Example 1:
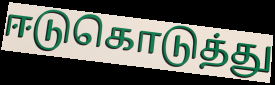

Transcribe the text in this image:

ஈடுகொடுத்து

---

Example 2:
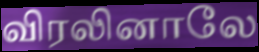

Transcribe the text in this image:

விரலினாலே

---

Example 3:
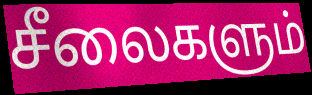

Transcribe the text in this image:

சீலைகளும்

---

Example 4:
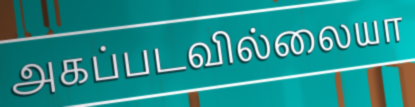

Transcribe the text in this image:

அகப்படவில்லையா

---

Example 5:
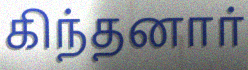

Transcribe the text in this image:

கிந்தனார்